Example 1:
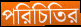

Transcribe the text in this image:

পরিচিতির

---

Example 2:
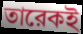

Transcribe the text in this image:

তারেকই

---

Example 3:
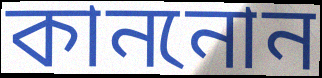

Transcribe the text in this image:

কাননোন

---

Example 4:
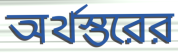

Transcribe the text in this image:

অর্থস্তরের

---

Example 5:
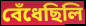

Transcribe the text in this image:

বেঁধেছিলি